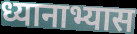
ध्यानाभ्यास